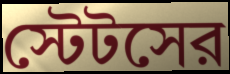
স্টেটসের